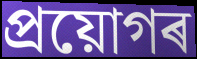
প্ৰয়োগৰ